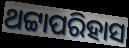
ଥଟ୍ଟାପରିହାସ